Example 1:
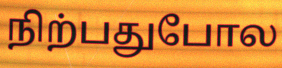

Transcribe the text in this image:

நிற்பதுபோல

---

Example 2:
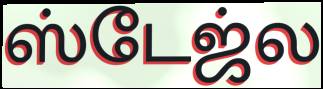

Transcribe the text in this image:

ஸ்டேஜ்ல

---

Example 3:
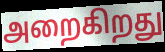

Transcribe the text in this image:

அறைகிறது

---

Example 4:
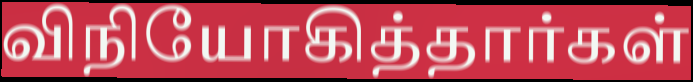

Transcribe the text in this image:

விநியோகித்தார்கள்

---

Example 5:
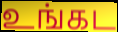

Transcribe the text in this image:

உங்கட